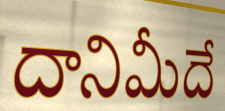
దానిమీదే